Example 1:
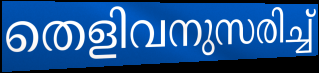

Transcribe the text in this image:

തെളിവനുസരിച്ച്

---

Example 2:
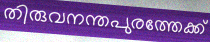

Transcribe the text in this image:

തിരുവനന്തപുരത്തേക്ക്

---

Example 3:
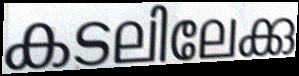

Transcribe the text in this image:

കടലിലേക്കു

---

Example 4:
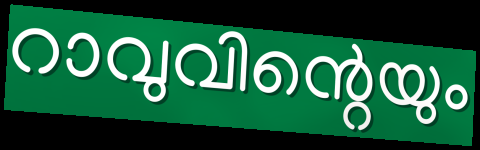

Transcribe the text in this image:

റാവുവിന്റെയും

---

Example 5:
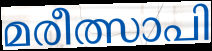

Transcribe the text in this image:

മരീത്സാപി